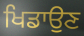
ਖਿਡਾਉਣ